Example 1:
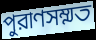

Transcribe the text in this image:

পুরাণসম্মত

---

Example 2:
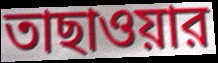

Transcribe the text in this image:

তাছাওয়ার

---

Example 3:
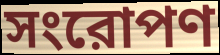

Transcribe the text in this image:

সংরোপণ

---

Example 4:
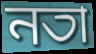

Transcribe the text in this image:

নতা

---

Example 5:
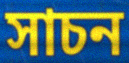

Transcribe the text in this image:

সাচন